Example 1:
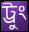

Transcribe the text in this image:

ট্রুং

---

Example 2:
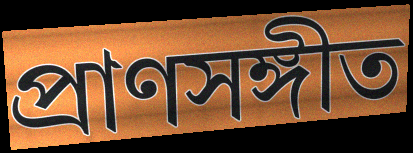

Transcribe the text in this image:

প্রাণসঙ্গীত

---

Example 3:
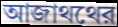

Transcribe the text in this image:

আজাথথের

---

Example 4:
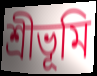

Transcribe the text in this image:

শ্রীভূমি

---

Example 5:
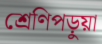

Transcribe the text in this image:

শ্রেণিপড়ুয়া